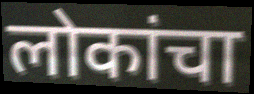
लोकांचा